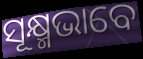
ସୂକ୍ଷ୍ମଭାବେ